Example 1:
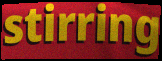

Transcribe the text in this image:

stirring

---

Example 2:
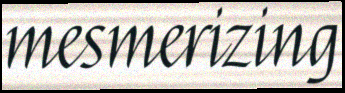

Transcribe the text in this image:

mesmerizing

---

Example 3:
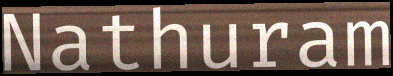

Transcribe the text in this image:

Nathuram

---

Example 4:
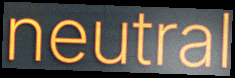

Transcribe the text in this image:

neutral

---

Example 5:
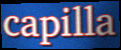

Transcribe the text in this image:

capilla